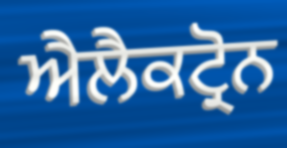
ਐਲੈਕਟ੍ਰੋਨ